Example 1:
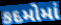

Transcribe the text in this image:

કદમોમાં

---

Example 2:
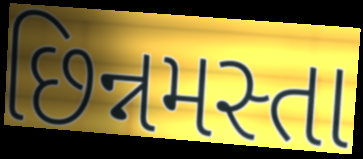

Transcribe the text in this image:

છિન્નમસ્તા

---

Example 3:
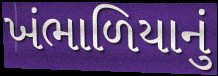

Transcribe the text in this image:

ખંભાળિયાનું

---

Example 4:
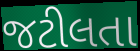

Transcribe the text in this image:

જટીલતા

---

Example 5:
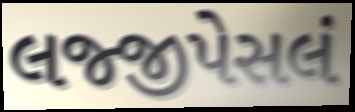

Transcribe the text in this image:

લજ્જીપેસલં